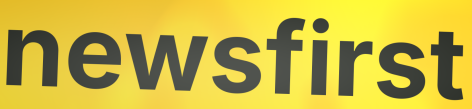
newsfirst